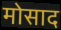
मोसाद